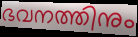
ഭവനത്തിനും